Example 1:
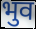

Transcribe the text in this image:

भुव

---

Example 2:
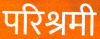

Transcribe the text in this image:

परिश्रमी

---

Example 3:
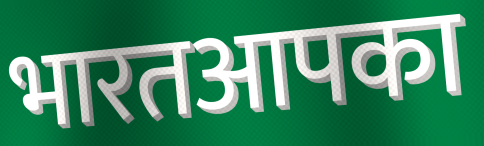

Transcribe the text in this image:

भारतआपका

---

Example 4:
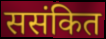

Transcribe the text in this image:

ससंकित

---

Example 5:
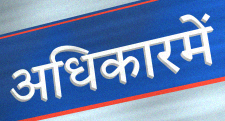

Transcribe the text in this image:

अधिकारमें